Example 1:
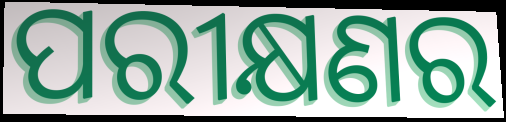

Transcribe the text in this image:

ପରୀକ୍ଷଣର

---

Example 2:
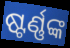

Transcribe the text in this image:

ଷ୍ଟର୍ଣ୍ଣଙ୍କ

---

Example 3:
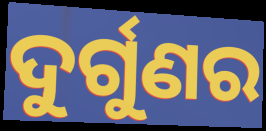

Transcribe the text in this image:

ଦୁର୍ଗୁଣର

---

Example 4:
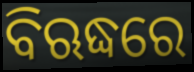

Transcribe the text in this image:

ବିଋଦ୍ଧରେ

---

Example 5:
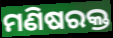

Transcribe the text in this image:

ମଣିଷରକ୍ତ